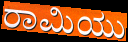
ರಾಮಿಯು